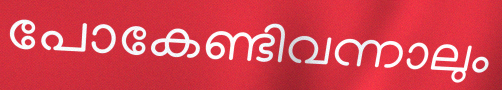
പോകേണ്ടിവന്നാലും